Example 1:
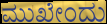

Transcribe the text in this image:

ಮುಖೇಂದು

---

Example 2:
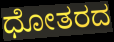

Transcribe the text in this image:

ಧೋತರದ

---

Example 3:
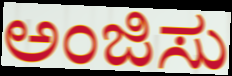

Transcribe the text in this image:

ಅಂಜಿಸು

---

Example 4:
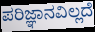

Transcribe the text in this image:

ಪರಿಜ್ಞಾನವಿಲ್ಲದೆ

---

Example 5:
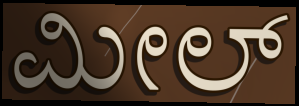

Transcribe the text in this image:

ಮೀಲ್